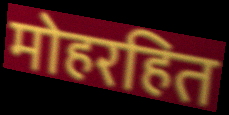
मोहरहित